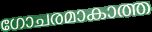
ഗോചരമാകാത്ത